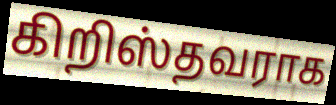
கிறிஸ்தவராக